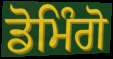
ਡੋਮਿੰਗੋ